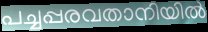
പച്ചപ്പരവതാനിയിൽ